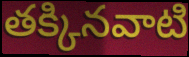
తక్కినవాటి